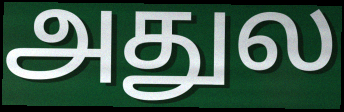
அதுல